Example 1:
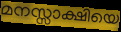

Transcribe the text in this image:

മനസ്സാക്ഷിയെ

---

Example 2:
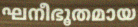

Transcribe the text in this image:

ഘനീഭൂതമായ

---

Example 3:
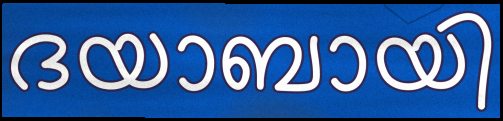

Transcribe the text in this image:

ദയാബായി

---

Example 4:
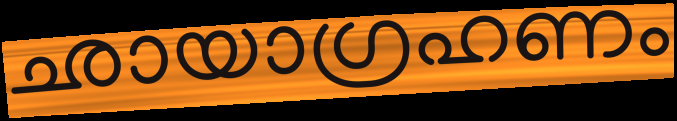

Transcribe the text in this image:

ഛായാഗ്രഹണം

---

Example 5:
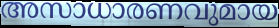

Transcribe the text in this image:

അസാധാരണവുമായ